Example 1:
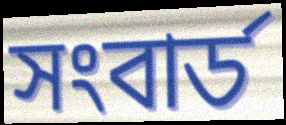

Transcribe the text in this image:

সংবার্ড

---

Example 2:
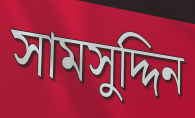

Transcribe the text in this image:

সামসুদ্দিন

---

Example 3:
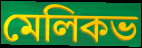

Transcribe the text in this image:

মেলিকভ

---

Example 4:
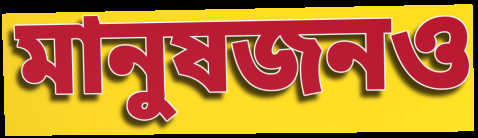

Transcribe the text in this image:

মানুষজনও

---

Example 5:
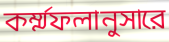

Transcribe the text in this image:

কর্ম্মফলানুসারে